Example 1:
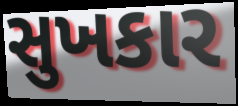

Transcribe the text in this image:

સુખકાર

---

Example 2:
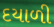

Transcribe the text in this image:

દયાળી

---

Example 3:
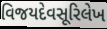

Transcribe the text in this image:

વિજયદેવસૂરિલેખ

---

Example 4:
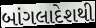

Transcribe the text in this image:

બાંગલાદેશથી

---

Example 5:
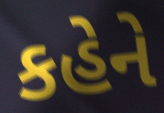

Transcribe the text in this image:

કહેને